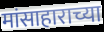
मांसाहाराच्या